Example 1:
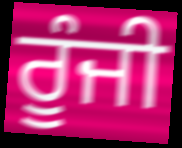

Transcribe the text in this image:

ਰੂੰਜੀ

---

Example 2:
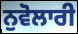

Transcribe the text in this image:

ਨੁਵੋਲਾਰੀ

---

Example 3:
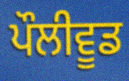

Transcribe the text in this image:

ਪੌਲੀਵੂਡ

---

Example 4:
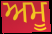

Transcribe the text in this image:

ਅਮੂ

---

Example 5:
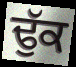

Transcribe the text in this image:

ਢੁੱਕ